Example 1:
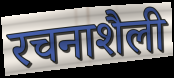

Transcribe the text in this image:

रचनाशैली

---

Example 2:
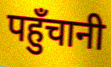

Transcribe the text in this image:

पहुँचानी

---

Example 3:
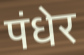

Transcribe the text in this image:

पंधेर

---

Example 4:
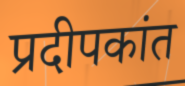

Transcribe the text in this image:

प्रदीपकांत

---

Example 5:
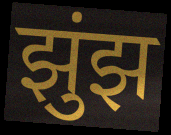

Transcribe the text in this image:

झुंझ